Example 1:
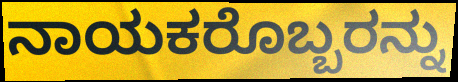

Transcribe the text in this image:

ನಾಯಕರೊಬ್ಬರನ್ನು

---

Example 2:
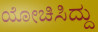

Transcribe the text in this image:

ಯೋಚಿಸಿದ್ದು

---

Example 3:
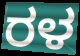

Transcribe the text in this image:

ರಳ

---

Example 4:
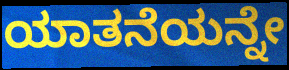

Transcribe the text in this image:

ಯಾತನೆಯನ್ನೇ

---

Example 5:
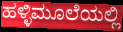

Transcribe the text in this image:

ಹಳ್ಳಿಮೂಲೆಯಲ್ಲಿ